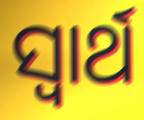
ସ୍ୱାର୍ଥ